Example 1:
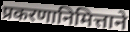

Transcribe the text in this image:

प्रकरणानिमित्ताने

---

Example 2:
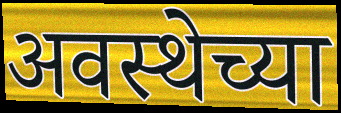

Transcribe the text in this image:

अवस्थेच्या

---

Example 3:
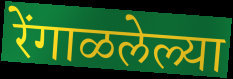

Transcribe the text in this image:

रेंगाळलेल्या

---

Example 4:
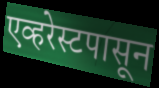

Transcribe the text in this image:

एव्हरेस्टपासून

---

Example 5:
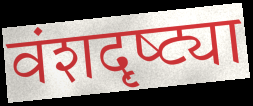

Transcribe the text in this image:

वंशदृष्ट्या